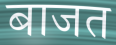
बाजत